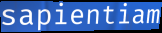
sapientiam